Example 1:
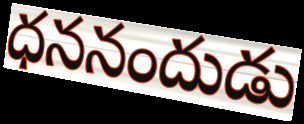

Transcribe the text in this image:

ధననందుడు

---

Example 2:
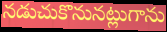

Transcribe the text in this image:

నడుచుకొనునట్లుగాను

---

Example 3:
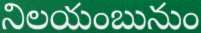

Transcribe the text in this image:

నిలయంబునుం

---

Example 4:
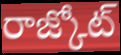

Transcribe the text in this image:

రాజ్కోట్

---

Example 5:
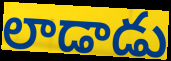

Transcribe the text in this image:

లాడాడు